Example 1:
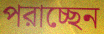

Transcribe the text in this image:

পরাচ্ছেন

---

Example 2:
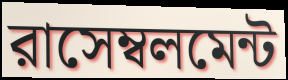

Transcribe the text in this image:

রাসেম্বলমেন্ট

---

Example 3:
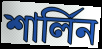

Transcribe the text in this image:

শার্লিন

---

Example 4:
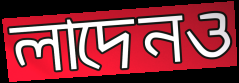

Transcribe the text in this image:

লাদেনও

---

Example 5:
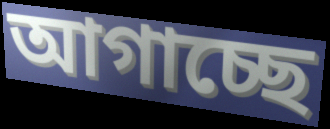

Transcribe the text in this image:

আগাচ্ছে